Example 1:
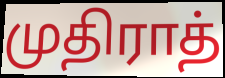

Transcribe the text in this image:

முதிராத்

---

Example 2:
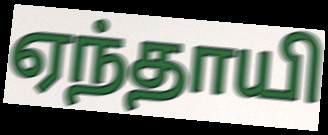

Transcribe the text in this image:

ஏந்தாயி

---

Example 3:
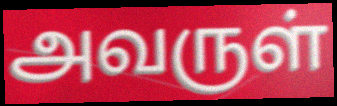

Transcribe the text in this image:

அவருள்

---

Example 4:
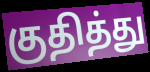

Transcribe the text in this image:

குதித்து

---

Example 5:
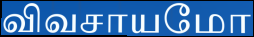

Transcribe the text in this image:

விவசாயமோ